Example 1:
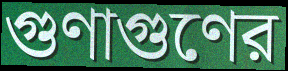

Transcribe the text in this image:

গুণাগুণের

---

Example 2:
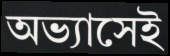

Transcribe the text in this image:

অভ্যাসেই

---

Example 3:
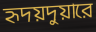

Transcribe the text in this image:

হৃদয়দুয়ারে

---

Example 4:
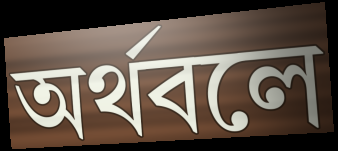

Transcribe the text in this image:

অর্থবলে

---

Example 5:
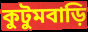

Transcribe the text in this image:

কুটুমবাড়ি